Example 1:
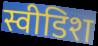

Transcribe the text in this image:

स्वीडिश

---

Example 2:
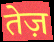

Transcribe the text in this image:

तेज़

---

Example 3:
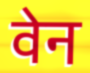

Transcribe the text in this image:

वेन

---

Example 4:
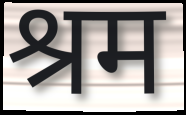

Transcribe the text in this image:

श्रम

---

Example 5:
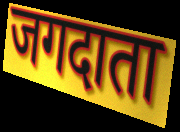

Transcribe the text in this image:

जगदाता